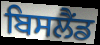
ਬਿਸਲੈਂਡ